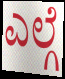
ಎಲ್ಗೆ